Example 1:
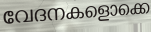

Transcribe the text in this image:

വേദനകളൊക്കെ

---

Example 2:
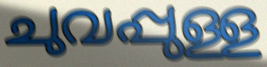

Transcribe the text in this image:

ചുവപ്പുള്ള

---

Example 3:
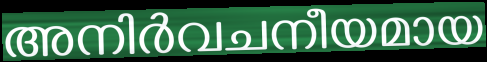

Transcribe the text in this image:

അനിർവചനീയമായ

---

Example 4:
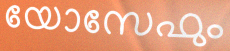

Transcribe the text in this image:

യോസേഫും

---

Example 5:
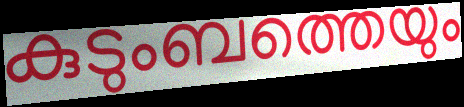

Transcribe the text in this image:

കുടുംബത്തെയും